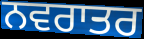
ਨਵਰਾਤਰ